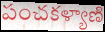
పంచకళ్యాణి